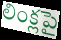
లింక్లపై